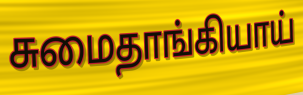
சுமைதாங்கியாய்